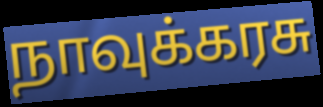
நாவுக்கரசு